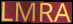
LMRA